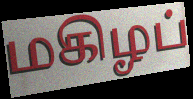
மகிழப்